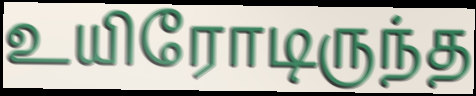
உயிரோடிருந்த